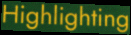
Highlighting